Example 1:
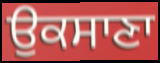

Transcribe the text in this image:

ਉਕਸਾਣਾ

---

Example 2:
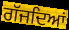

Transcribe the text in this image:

ਗੱਜਦਿਆਂ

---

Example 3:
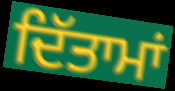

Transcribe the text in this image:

ਦਿੱਤਾਮਾਂ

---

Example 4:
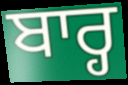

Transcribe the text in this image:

ਬਾਰ੍ਹ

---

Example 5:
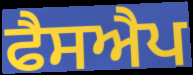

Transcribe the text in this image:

ਫੈਸਐਪ